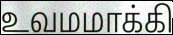
உவமமாக்கி